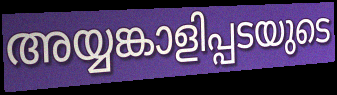
അയ്യങ്കാളിപ്പടയുടെ